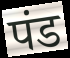
पंड